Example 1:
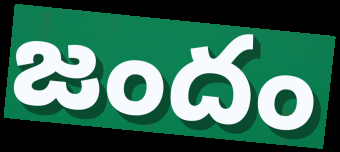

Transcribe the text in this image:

జందం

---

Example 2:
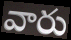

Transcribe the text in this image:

వారు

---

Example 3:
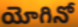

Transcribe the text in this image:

యోగినో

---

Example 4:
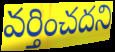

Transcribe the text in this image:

వర్తించదని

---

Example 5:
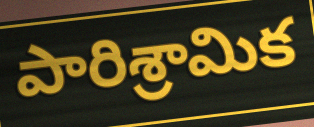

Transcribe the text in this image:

పారిశ్రామిక